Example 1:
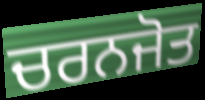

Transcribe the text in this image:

ਚਰਨਜੋਤ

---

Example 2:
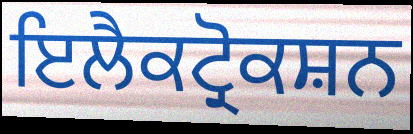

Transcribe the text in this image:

ਇਲੈਕਟ੍ਰੋਕਸ਼ਨ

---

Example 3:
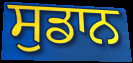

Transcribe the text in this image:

ਸੁਡਾਨ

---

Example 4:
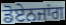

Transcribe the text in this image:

ਡੋਏਨਜਾਂਗ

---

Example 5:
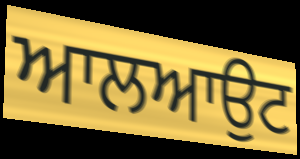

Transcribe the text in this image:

ਆਲਆਉਟ